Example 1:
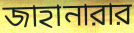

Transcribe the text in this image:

জাহানারার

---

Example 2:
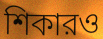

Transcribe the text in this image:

শিকারও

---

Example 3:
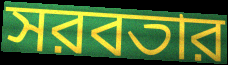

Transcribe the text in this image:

সরবতার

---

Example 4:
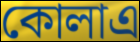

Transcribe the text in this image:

কোলাএ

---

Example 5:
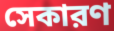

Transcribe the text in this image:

সেকারণ